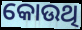
କୋଉଥି